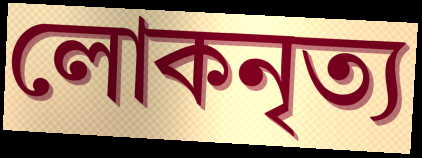
লোকনৃত্য